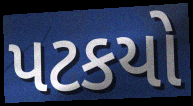
પટકયો